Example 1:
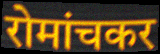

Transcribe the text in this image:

रोमांचकर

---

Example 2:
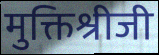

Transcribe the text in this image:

मुक्तिश्रीजी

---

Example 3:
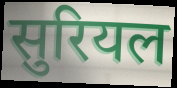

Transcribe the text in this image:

सुरियल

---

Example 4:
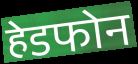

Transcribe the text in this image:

हेडफोन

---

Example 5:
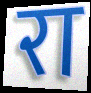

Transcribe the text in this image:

रा